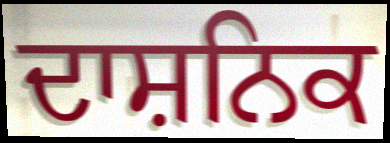
ਦਾਸ਼ਨਿਕ